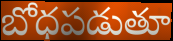
బోధపడుతూ